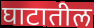
घाटातील